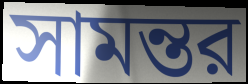
সামন্তর